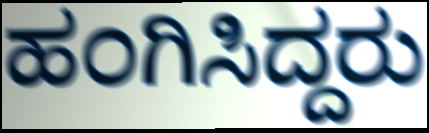
ಹಂಗಿಸಿದ್ದರು